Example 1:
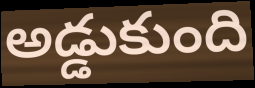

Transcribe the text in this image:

అడ్డుకుంది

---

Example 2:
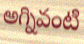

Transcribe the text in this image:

అగ్నివంటి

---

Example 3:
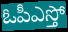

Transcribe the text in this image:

ఓపీఎస్తో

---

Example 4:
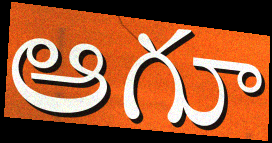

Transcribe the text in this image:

ఆగూ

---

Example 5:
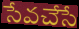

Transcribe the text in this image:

సేవచేసే